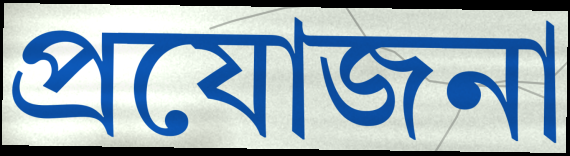
প্ৰযোজনা